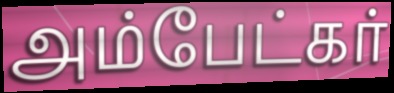
அம்பேட்கர்